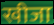
खीजा